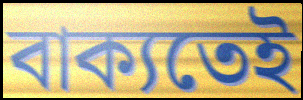
বাক্যতেই